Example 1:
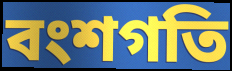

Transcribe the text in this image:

বংশগতি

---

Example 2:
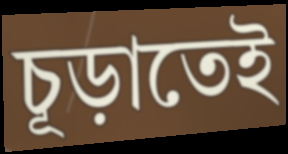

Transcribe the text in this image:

চূড়াতেই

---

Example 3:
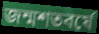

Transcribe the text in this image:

জন্মশতবর্ষে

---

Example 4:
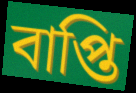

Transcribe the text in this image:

বাপ্তি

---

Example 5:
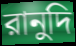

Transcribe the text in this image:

রানুদি